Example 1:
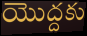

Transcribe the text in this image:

యొద్దకు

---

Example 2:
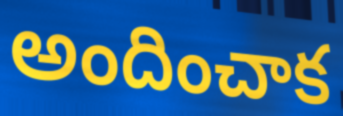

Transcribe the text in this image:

అందించాక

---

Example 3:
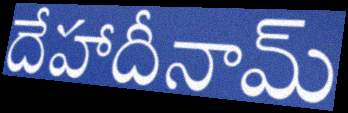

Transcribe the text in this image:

దేహాదీనామ్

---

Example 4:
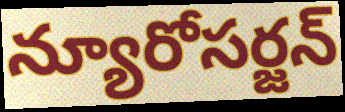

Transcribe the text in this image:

న్యూరోసర్జన్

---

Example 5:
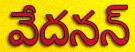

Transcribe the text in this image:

వేదనన్